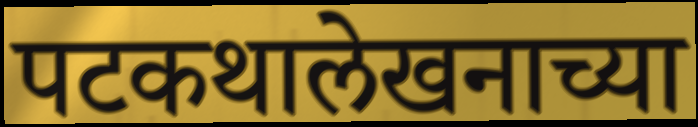
पटकथालेखनाच्या